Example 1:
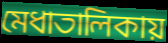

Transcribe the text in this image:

মেধাতালিকায়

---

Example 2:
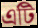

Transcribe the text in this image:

এটি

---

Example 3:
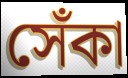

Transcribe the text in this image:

সেঁকা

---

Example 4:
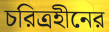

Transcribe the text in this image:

চরিত্রহীনের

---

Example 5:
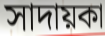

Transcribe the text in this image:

সাদায়কা